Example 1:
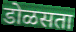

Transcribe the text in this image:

डोळसता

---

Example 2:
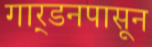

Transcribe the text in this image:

गार्डनपासून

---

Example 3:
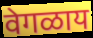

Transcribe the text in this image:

वेगळाय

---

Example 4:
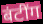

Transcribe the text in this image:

बंटींग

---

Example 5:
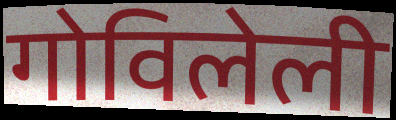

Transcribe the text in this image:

गोविलेली